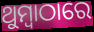
ଥୁମ୍ବାଠାରେ